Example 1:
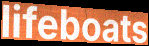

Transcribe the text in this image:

lifeboats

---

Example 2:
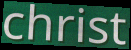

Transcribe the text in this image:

christ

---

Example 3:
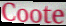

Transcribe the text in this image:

Coote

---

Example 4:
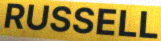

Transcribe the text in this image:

RUSSELL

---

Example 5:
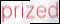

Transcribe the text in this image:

prized